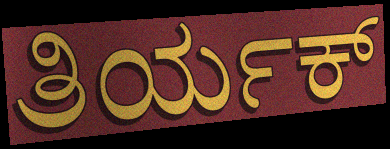
ತಿರ್ಯಕ್